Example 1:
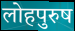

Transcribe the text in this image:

लोहपुरुष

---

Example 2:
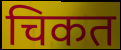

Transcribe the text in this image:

चिकत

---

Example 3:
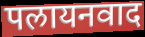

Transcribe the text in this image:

पलायनवाद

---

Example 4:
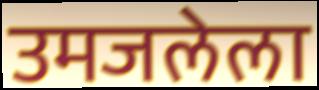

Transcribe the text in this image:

उमजलेला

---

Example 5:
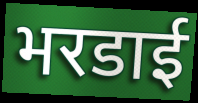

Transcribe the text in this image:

भरडाई